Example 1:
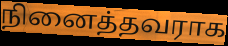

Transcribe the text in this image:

நினைத்தவராக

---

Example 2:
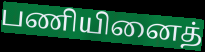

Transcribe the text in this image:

பணியினைத்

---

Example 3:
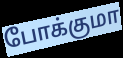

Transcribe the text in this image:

போக்குமா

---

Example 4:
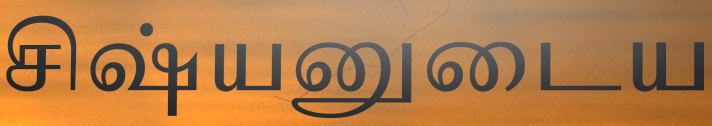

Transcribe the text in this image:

சிஷ்யனுடைய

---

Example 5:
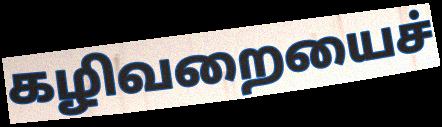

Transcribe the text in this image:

கழிவறையைச்